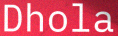
Dhola